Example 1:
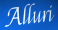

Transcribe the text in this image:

Alluri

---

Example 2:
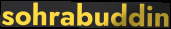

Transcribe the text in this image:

sohrabuddin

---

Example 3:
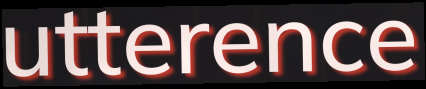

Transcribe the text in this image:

utterence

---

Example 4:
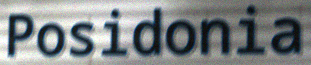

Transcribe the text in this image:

Posidonia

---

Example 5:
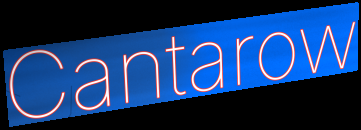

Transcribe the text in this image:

Cantarow